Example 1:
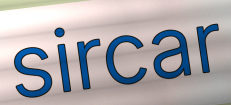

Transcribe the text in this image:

sircar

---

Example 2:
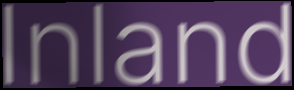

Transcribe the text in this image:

Inland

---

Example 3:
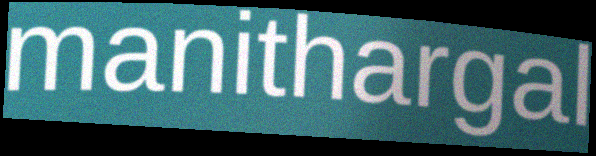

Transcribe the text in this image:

manithargal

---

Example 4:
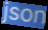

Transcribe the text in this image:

json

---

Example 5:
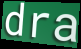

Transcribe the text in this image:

dra